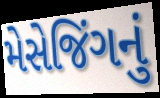
મેસેજિંગનું